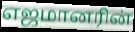
எஜமானரின்